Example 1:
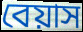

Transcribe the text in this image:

বেয়াস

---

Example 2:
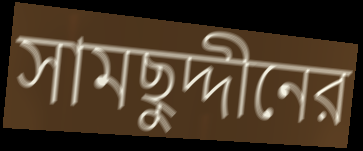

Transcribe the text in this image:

সামছুদ্দীনের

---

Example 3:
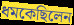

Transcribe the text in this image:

ধমকেছিলেন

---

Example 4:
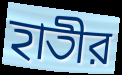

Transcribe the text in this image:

হাতীর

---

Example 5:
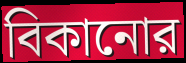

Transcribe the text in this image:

বিকানোর